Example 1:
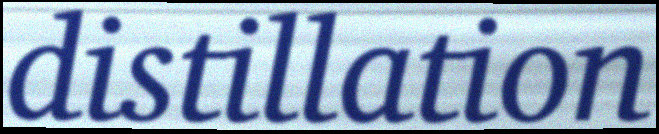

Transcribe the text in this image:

distillation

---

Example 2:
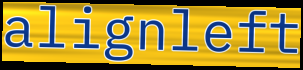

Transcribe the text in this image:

alignleft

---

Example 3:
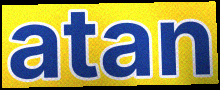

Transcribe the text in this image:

atan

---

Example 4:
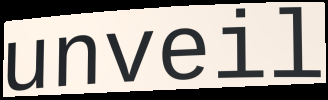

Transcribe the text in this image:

unveil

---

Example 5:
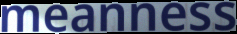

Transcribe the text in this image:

meanness